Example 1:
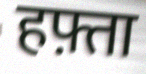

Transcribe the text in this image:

हफ़्ता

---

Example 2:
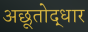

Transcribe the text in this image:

अछूतोद्धार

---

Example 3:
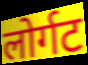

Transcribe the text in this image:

लोर्गट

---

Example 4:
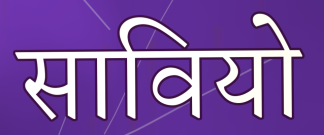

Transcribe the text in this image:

सावियो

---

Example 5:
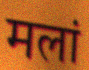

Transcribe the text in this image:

मलां